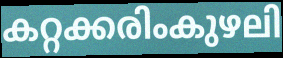
കറ്റക്കരിംകുഴലി